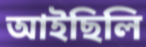
আইছিলি